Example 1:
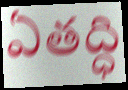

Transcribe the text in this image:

ఏతద్ధి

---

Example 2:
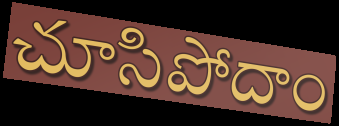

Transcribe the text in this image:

చూసిపోదాం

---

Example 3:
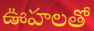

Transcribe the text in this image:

ఊహలతో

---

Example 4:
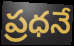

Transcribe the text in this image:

ప్రధనే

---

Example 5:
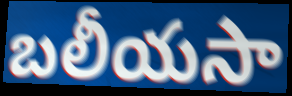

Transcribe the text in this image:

బలీయసా